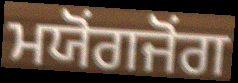
ਮਯੋਂਗਜੋਂਗ